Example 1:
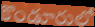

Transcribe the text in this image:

కొండూరులో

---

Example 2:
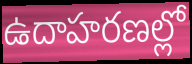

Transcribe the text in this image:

ఉదాహరణల్లో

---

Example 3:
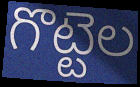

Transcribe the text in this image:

గొట్టెల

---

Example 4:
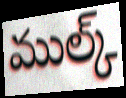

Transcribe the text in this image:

ముల్క్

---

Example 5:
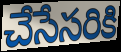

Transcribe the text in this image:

చేసేసరికి